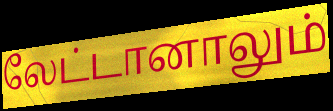
லேட்டானாலும்